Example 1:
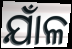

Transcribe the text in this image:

ଯାଁଳ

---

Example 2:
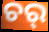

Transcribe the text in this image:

ଚର୍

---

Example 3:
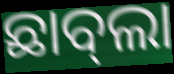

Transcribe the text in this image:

ଛାବ୍‍ଲା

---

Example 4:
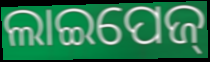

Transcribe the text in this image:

ଲାଇପେଜ୍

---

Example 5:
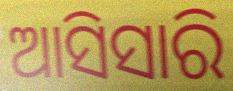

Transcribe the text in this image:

ଆସିସାରି